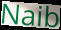
Naib